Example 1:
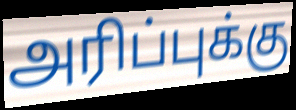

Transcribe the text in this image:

அரிப்புக்கு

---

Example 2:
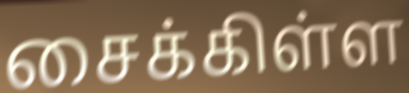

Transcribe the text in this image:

சைக்கிள்ள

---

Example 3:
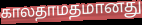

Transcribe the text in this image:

காலதாமதமானது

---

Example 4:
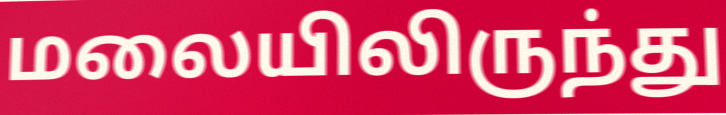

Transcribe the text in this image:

மலையிலிருந்து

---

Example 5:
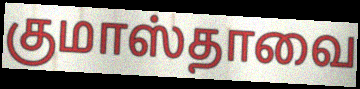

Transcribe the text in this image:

குமாஸ்தாவை